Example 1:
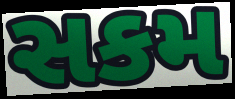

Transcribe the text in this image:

સકમ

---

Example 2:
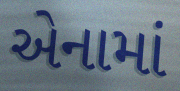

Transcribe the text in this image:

એનામાં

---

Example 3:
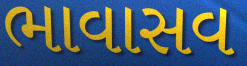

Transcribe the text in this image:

ભાવાસવ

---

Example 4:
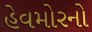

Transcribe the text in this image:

હેવમોરનો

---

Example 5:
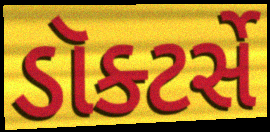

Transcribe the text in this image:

ડૉક્ટર્સે